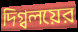
দিগ্বলয়ের